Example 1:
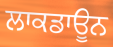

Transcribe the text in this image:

ਲਾਕਡਾਊਨ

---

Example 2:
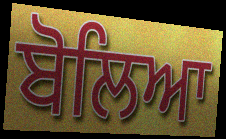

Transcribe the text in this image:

ਬੋਲਿਆ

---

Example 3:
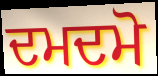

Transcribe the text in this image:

ਦਮਦਮੋ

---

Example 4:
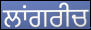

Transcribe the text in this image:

ਲਾਂਗਰੀਚ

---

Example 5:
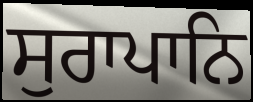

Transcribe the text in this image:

ਸੁਰਾਪਾਨਿ